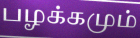
பழக்கமும்